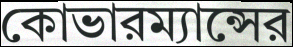
কোভারম্যান্সের